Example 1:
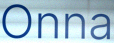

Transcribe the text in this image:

Onna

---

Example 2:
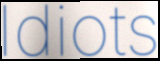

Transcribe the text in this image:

Idiots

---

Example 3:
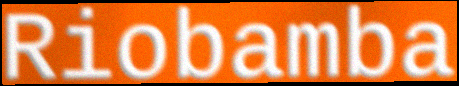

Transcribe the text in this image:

Riobamba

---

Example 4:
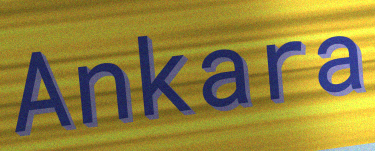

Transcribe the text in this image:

Ankara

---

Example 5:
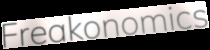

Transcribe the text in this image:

Freakonomics